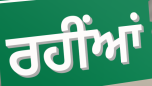
ਰਹੀਂਆਂ